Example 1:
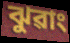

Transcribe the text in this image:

ঝুৱাং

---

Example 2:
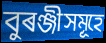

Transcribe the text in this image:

বুৰঞ্জীসমূহে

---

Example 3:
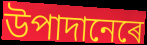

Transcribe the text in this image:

উপাদানেৰে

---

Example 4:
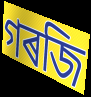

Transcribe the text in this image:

গৰজি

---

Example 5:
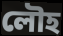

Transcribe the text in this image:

লৌহ